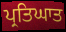
ਪ੍ਰਤਿਘਾਤ